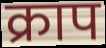
क्राप